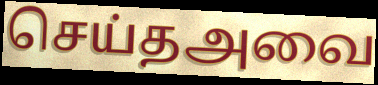
செய்தஅவை